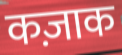
कज़ाक